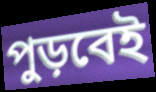
পুড়বেই